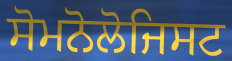
ਸੋਮਨੋਲੋਜਿਸਟ